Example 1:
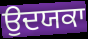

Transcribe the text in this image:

ਉਦਯਕਾ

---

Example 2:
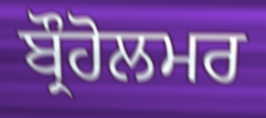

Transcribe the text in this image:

ਬ੍ਰੌਹੋਲਮਰ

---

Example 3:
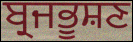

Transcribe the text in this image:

ਬ੍ਰਜਭੂਸ਼ਣ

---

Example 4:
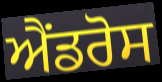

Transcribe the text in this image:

ਐਂਡਰੋਸ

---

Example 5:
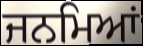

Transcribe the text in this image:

ਜਨਮਿਆਂ